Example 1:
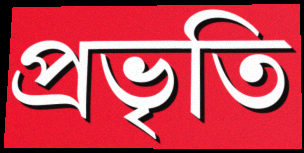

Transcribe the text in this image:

প্রভৃতি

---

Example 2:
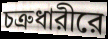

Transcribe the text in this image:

চত্রুধারীরে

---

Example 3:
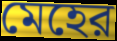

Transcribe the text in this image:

মেহের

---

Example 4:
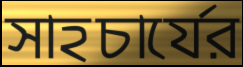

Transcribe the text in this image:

সাহচার্যের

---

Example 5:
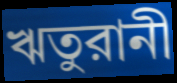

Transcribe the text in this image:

ঋতুরানী